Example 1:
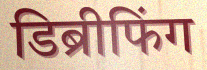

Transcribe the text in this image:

डिब्रीफिंग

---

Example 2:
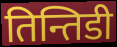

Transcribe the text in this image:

तिन्तिडी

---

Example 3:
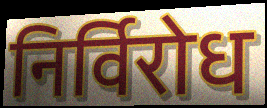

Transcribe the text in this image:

निर्विरोध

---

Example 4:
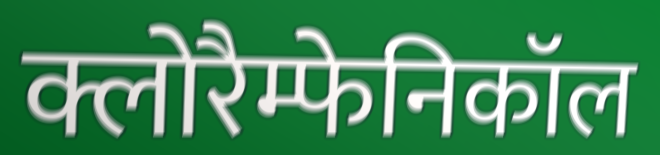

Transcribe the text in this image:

क्लोरैम्फेनिकॉल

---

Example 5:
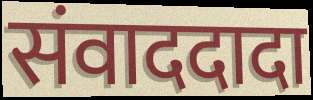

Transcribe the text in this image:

संवाददादा